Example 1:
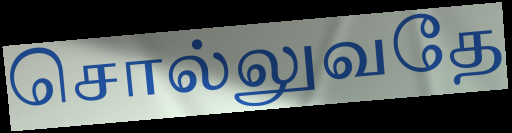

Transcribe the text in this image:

சொல்லுவதே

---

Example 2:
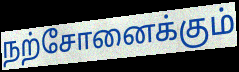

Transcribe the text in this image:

நற்சோனைக்கும்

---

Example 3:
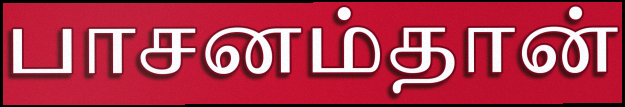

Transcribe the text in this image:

பாசனம்தான்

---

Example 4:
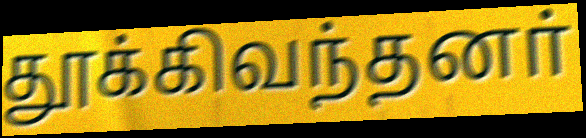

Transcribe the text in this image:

தூக்கிவந்தனர்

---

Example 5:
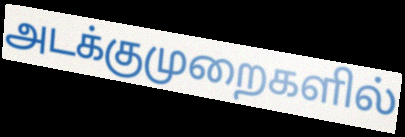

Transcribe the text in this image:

அடக்குமுறைகளில்